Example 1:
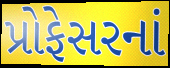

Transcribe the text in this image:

પ્રોફેસરનાં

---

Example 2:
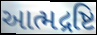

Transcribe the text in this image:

આત્મદ્રષ્ટિ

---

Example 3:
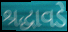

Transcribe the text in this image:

શ્રદ્ધાવડે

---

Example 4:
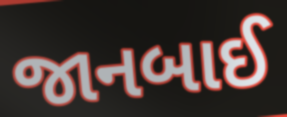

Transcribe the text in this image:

જાનબાઈ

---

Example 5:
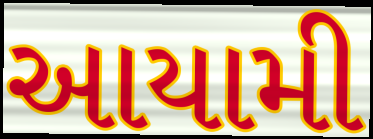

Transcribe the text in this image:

આયામી